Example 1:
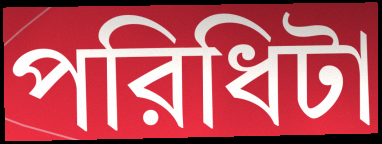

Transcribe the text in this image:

পরিধিটা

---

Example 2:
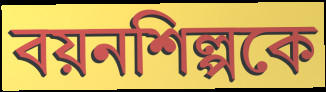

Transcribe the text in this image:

বয়নশিল্পকে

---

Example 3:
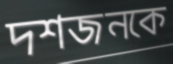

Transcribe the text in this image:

দশজনকে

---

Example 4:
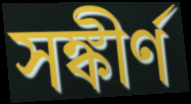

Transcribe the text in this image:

সঙ্কীর্ণ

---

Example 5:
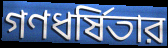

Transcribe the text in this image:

গণধর্ষিতার